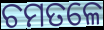
ଚମତଳେ